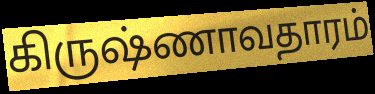
கிருஷ்ணாவதாரம்